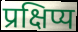
प्रक्षिप्य